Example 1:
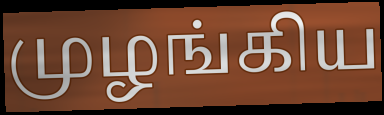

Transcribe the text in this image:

முழங்கிய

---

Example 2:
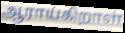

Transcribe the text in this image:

ஆராய்கிறாள்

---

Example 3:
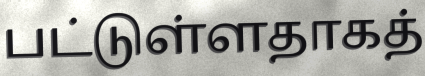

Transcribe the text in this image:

பட்டுள்ளதாகத்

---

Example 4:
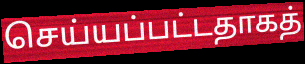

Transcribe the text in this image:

செய்யப்பட்டதாகத்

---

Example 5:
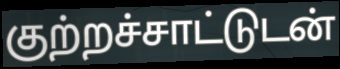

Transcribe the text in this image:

குற்றச்சாட்டுடன்